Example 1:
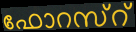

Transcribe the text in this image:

ഫോറസ്റ്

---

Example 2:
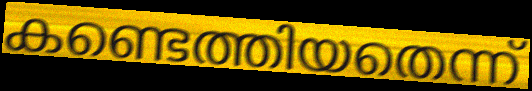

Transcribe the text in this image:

കണ്ടെത്തിയതെന്ന്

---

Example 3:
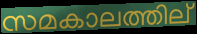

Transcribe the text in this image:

സമകാലത്തില്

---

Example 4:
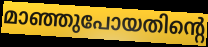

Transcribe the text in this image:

മാഞ്ഞുപോയതിന്റെ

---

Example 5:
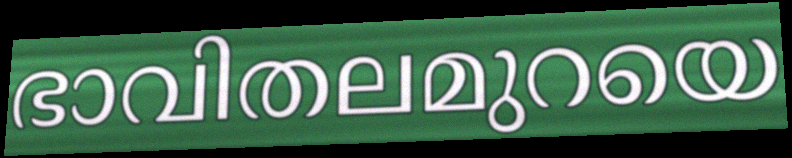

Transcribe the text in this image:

ഭാവിതലമുറയെ